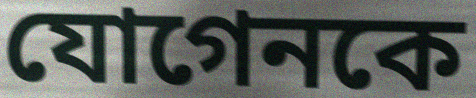
যোগেনকে